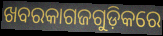
ଖବରକାଗଜଗୁଡ଼ିକରେ